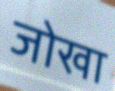
जोखा